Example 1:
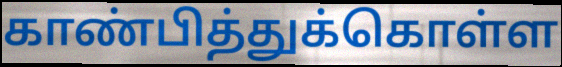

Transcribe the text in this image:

காண்பித்துக்கொள்ள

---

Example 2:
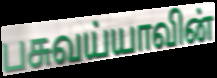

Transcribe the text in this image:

பசுவய்யாவின்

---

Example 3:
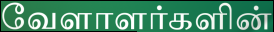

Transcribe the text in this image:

வேளாளர்களின்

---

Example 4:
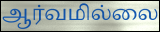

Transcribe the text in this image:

ஆர்வமில்லை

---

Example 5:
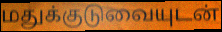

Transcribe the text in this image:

மதுக்குடுவையுடன்